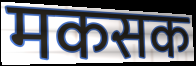
मकसक